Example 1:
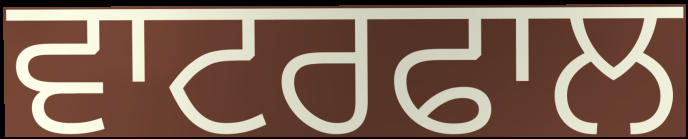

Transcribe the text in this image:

ਵਾਟਰਫਾਲ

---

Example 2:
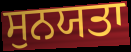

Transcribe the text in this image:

ਸੁਨਯਤਾ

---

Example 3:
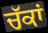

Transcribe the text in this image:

ਚੱਕਾਂ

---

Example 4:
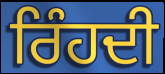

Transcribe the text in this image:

ਰਿੰਹਦੀ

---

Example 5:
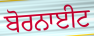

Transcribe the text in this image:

ਬੋਰਨਾਈਟ